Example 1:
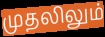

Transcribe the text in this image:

முதலிலும்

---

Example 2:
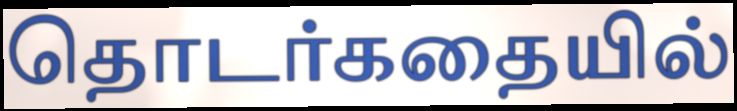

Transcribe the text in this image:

தொடர்கதையில்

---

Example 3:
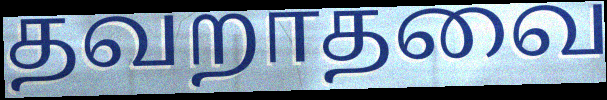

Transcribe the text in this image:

தவறாதவை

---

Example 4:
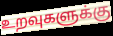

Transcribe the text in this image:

உறவுகளுக்கு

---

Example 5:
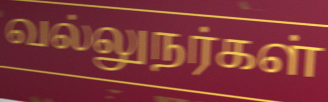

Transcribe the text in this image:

வல்லுநர்கள்